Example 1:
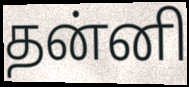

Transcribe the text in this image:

தன்னி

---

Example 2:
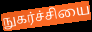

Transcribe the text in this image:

நுகர்ச்சியை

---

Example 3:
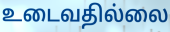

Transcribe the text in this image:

உடைவதில்லை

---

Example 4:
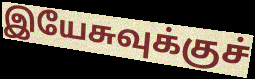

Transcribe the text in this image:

இயேசுவுக்குச்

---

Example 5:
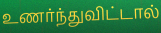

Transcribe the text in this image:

உணர்ந்துவிட்டால்